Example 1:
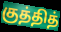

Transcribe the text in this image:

குத்தித்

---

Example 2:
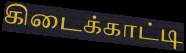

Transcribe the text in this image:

கிடைக்காட்டி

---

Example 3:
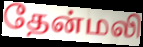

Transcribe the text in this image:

தேன்மலி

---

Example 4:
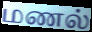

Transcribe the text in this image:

மணல்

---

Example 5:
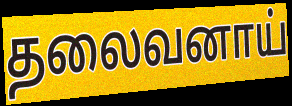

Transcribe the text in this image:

தலைவனாய்